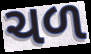
ચળ